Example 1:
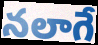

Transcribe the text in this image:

నలాగే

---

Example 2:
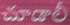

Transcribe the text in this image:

చూడాలీ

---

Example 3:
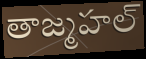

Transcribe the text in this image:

తాజ్మహల్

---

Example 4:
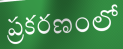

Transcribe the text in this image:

ప్రకరణంలో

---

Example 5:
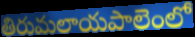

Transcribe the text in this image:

తిరుమలాయపాలెంలో